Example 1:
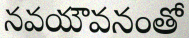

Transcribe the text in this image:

నవయౌవనంతో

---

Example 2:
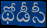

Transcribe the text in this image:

థోడీసీ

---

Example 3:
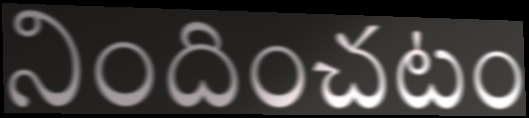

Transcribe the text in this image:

నిందించటం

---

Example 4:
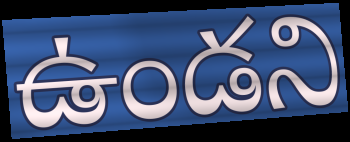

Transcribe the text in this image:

ఉండని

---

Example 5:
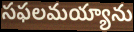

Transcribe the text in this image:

సఫలమయ్యాను